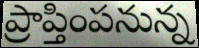
ప్రాప్తింపనున్న